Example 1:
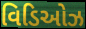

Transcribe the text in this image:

વિડિઓઝ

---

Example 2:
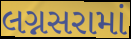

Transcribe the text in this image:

લગ્નસરામાં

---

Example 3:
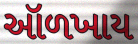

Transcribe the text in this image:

ઑળખાય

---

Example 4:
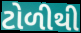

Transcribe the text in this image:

ટોળીથી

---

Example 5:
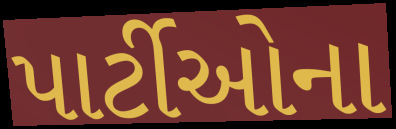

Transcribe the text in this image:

પાર્ટીઓના